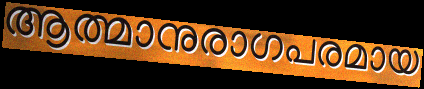
ആത്മാനുരാഗപരമായ